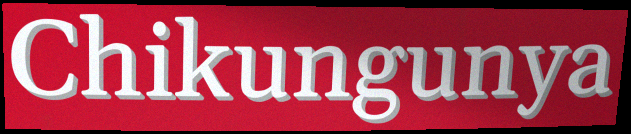
Chikungunya